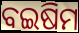
ବଇଷିମ